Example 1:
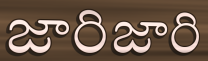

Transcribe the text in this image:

జారిజారి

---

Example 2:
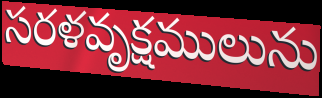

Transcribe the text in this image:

సరళవృక్షములును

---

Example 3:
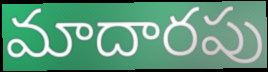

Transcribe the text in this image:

మాదారపు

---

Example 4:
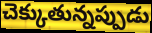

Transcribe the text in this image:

చెక్కుతున్నప్పుడు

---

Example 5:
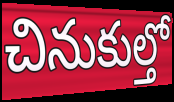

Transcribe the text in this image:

చినుకుల్తో